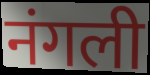
नंगली